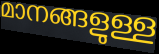
മാനങ്ങളുള്ള